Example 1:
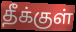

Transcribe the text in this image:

தீக்குள்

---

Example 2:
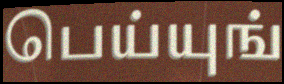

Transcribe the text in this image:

பெய்யுங்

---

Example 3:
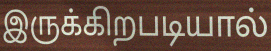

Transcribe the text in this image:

இருக்கிறபடியால்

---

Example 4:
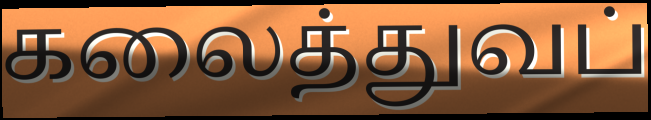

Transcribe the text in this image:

கலைத்துவப்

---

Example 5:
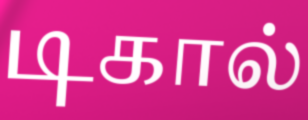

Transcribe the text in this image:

டிகால்